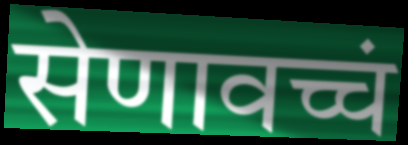
सेणावच्चं